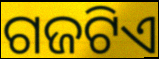
ଗଜଟିଏ